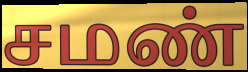
சமண்